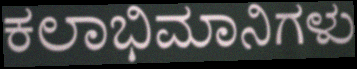
ಕಲಾಭಿಮಾನಿಗಳು